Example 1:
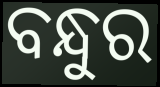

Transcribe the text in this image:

ବନ୍ଧୁର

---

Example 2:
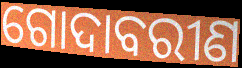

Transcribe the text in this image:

ଗୋଦାବରୀଣ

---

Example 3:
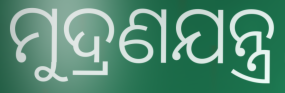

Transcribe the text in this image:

ମୁଦ୍ରଣଯନ୍ତ୍ର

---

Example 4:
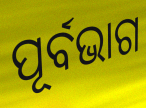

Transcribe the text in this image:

ପୂର୍ବଭାଗ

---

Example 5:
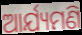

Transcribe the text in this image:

ଆର୍ଯ୍ୟମଣି